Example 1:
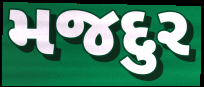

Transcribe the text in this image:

મજદુર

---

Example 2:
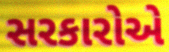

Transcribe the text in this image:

સરકારોએ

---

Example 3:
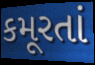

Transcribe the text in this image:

કમૂરતાં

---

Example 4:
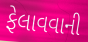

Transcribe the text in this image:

ફેલાવવાની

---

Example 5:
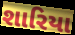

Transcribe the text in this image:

શારિયા